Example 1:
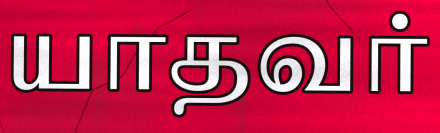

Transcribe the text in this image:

யாதவர்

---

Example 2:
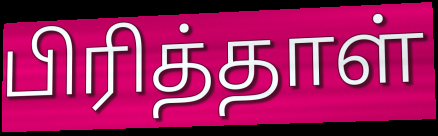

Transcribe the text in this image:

பிரித்தாள்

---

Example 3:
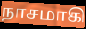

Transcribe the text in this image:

நாசமாகி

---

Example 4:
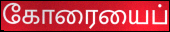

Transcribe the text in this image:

கோரையைப்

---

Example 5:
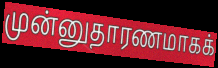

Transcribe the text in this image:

முன்னுதாரணமாகக்